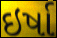
ઇર્ષા